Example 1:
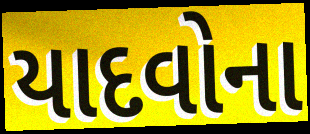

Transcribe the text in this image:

યાદવોના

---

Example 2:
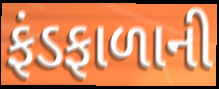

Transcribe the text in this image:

ફંડફાળાની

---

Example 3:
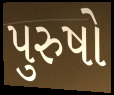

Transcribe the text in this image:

પુરુષો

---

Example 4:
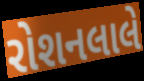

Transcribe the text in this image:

રોશનલાલે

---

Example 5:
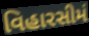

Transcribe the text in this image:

વિહારસીમં